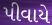
પીવાયે